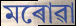
মৰোৱা